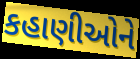
કહાણીઓને